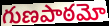
గుణపాఠమో